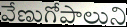
వేణుగోపాలుని